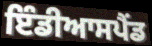
ਇੰਡੀਆਸਪੈਂਡ